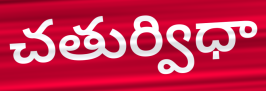
చతుర్విధా